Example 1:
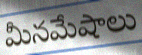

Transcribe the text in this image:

మీనమేషాలు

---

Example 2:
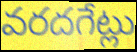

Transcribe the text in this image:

వరదగేట్లు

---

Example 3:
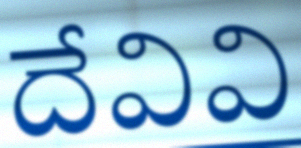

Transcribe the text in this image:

దేవివి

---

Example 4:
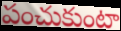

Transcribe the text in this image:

పంచుకుంటా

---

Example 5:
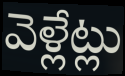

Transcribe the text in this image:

వెళ్లేట్లు